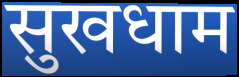
सुखधाम